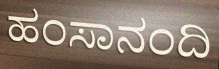
ಹಂಸಾನಂದಿ